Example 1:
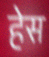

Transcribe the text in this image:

हेस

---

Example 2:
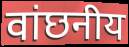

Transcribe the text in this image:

वांछनीय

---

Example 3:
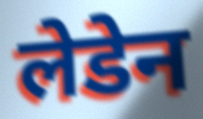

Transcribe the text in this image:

लेडेन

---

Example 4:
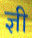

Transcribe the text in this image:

ज्ञी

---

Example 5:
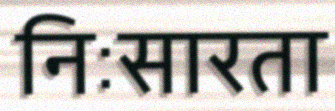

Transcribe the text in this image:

निःसारता